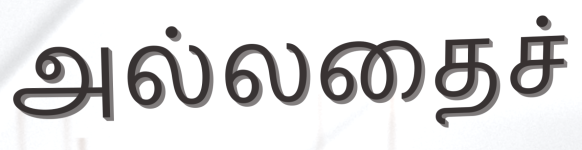
அல்லதைச்